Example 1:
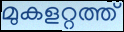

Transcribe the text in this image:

മുകളറ്റത്ത്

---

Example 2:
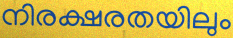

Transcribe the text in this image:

നിരക്ഷരതയിലും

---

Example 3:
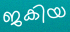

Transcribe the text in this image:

ജകിയ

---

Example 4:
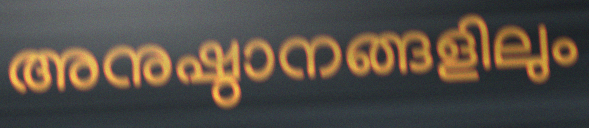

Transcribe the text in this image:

അനുഷ്ഠാനങ്ങളിലും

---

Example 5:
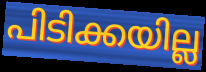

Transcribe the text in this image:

പിടിക്കയില്ല